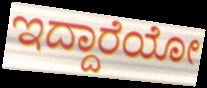
ಇದ್ದಾರೆಯೋ